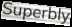
Superbly